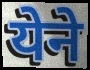
येने